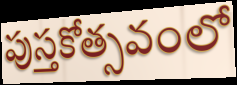
పుస్తకోత్సవంలో